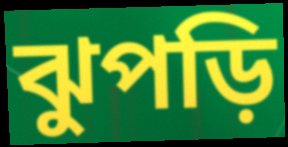
ঝুপড়ি